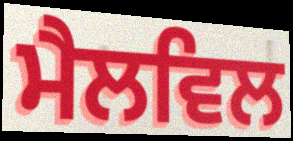
ਮੈਲਵਿਲ